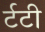
र्टटी